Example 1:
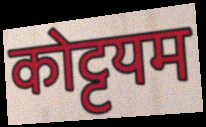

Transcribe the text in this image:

कोट्टयम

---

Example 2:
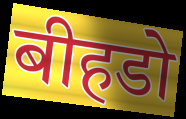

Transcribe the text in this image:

बीहडो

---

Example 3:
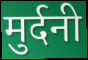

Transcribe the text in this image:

मुर्दनी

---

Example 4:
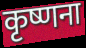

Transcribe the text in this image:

कृष्णना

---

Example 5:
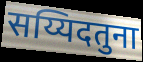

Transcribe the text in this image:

सय्यिदतुना